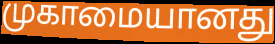
முகாமையானது